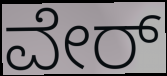
ವೇರ್